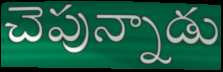
చెపున్నాడు